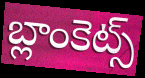
బ్లాంకెట్స్